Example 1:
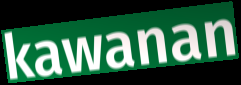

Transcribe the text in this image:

kawanan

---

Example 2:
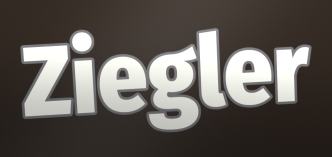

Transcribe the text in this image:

Ziegler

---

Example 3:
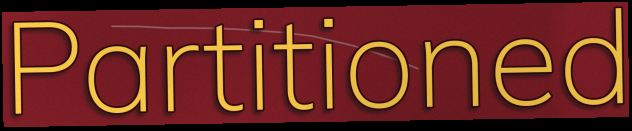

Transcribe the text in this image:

Partitioned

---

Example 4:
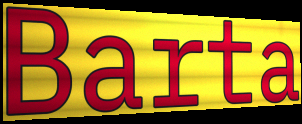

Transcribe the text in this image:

Barta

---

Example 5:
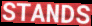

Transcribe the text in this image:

STANDS